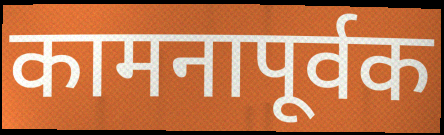
कामनापूर्वक